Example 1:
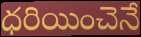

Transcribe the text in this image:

ధరియించెనే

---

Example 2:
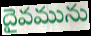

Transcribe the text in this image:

దైవమును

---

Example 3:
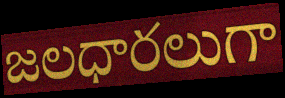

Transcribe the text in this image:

జలధారలుగా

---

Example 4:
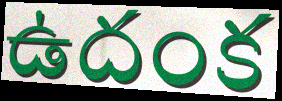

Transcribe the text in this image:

ఉదంక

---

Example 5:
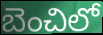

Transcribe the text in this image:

బెంచిలో